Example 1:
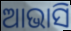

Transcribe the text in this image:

ଆଭାସି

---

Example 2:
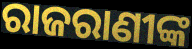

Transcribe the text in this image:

ରାଜରାଣୀଙ୍କ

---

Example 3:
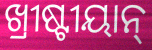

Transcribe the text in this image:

ଖ୍ରୀଷ୍ଟୀୟାନ୍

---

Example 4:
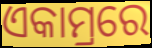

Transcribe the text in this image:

ଏକାମ୍ରରେ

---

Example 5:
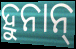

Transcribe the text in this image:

ହୁନାନ୍